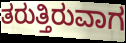
ತರುತ್ತಿರುವಾಗ